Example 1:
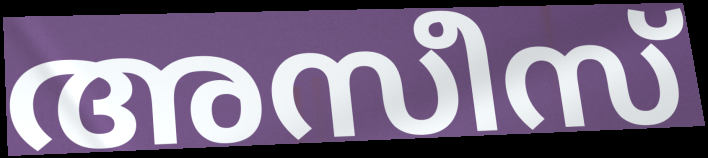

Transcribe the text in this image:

അസീസ്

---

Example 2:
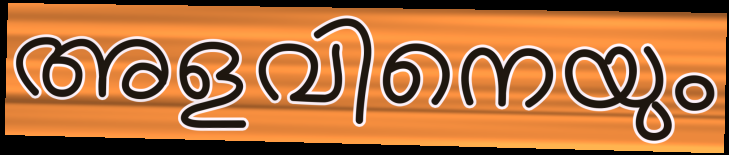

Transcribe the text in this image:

അളവിനെയും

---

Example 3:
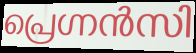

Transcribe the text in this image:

പ്രെഗ്നൻസി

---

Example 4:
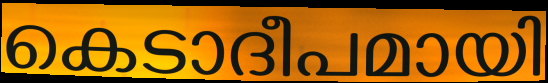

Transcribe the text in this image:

കെടാദീപമായി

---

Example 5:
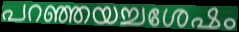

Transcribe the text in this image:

പറഞ്ഞയച്ചശേഷം